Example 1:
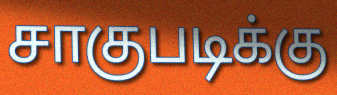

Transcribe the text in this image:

சாகுபடிக்கு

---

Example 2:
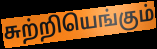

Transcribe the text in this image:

சுற்றியெங்கும்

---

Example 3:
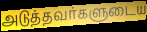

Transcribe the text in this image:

அடுத்தவர்களுடைய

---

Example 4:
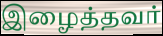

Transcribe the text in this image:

இழைத்தவர்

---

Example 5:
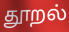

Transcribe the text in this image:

தூறல்